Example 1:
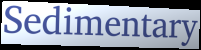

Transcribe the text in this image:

Sedimentary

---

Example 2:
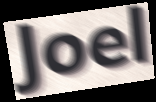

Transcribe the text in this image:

Joel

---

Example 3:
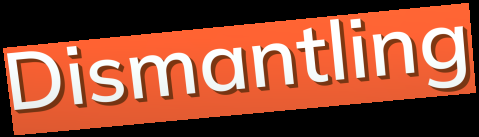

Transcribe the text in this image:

Dismantling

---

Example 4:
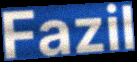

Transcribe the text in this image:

Fazil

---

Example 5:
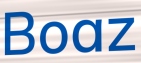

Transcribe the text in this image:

Boaz